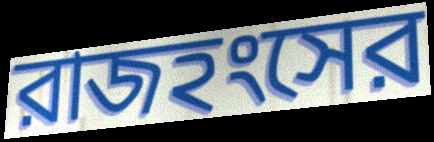
রাজহংসের